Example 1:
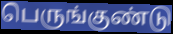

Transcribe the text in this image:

பெருங்குண்டு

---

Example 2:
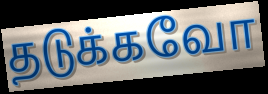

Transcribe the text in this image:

தடுக்கவோ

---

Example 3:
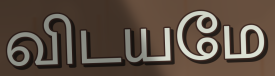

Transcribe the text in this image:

விடயமே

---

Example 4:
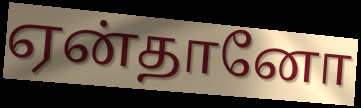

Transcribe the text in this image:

ஏன்தானோ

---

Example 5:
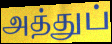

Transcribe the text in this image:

அத்துப்